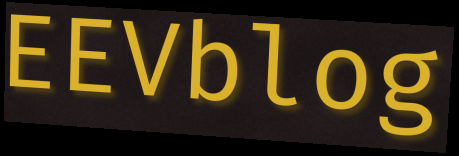
EEVblog